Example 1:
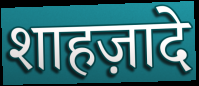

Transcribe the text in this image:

शाहज़ादे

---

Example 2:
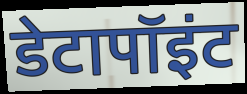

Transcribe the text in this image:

डेटापॉइंट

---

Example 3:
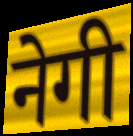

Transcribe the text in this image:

नेगी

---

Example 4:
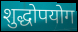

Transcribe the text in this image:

शुद्धोपयोग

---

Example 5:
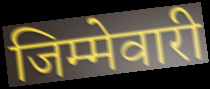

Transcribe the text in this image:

जिम्मेवारी